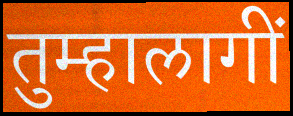
तुम्हालागीं